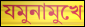
যমুনামুখে